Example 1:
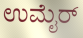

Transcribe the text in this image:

ಉಮೈರ್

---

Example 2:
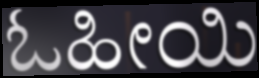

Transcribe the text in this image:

ಓಹೀಯಿ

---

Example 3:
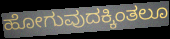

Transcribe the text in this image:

ಹೋಗುವುದಕ್ಕಿಂತಲೂ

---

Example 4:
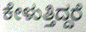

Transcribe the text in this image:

ಕೇಳುತ್ತಿದ್ದರೆ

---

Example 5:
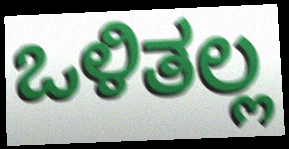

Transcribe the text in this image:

ಒಳಿತಲ್ಲ